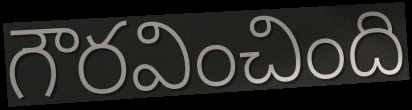
గౌరవించింది